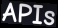
APIs